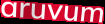
aruvum